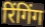
रिंगिंग